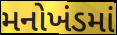
મનોખંડમાં